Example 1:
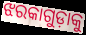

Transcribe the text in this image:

ଝରକାଗୁଡ଼ାକୁ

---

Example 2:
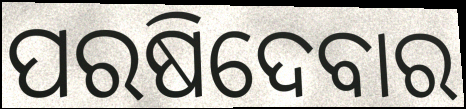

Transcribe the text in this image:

ପରଷିଦେବାର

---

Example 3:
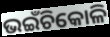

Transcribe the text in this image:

ଭଇଁଚିକୋଳି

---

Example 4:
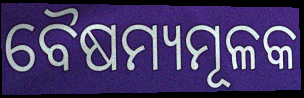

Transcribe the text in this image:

ବୈଷମ୍ୟମୂଳକ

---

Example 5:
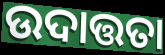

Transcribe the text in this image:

ଉଦାତ୍ତତା